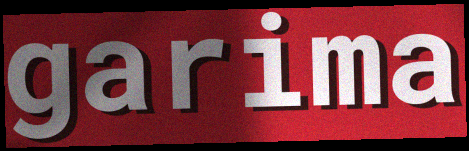
garima